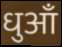
धुआँ